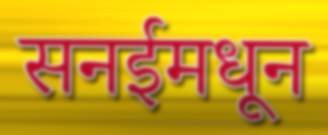
सनईमधून